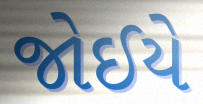
જોઈયે